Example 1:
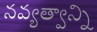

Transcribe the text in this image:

నవ్యత్వాన్ని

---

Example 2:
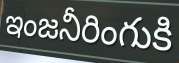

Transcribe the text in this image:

ఇంజనీరింగుకి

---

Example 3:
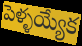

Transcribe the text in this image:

పెళ్ళయ్యేక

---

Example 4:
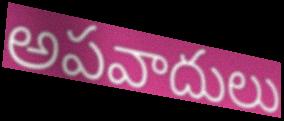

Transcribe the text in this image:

అపవాదులు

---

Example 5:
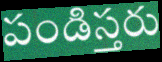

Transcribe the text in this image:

పండిస్తరు